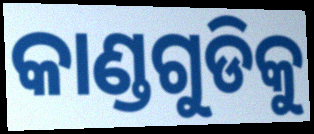
କାଣ୍ଡଗୁଡିକୁ